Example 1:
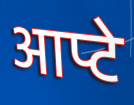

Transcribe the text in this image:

आप्टे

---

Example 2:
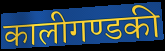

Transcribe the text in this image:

कालीगण्डकी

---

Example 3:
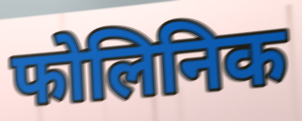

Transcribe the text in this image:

फोलिनिक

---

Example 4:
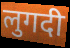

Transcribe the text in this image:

लुगदी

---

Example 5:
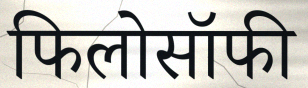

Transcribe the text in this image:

फिलोसॉफी